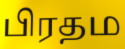
பிரதம